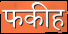
फकीह